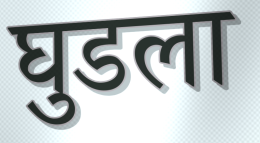
घुडला